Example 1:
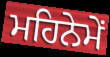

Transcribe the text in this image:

ਮਹਿਨੇਮੇਂ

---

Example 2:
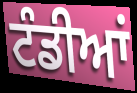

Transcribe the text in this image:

ਟੰਡੀਆਂ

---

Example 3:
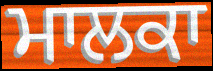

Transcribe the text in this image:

ਮਾਲਕਾ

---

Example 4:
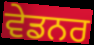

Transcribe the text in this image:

ਵੇਡਨਰ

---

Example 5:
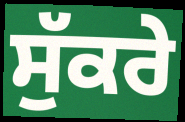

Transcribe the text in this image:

ਸੁੱਕਰੇ